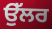
ਉੱਲਰ